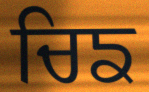
ਚਿਙ